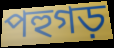
পহুগড়